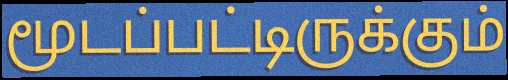
மூடப்பட்டிருக்கும்